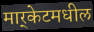
मार्केटमधील